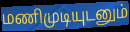
மணிமுடியுடனும்